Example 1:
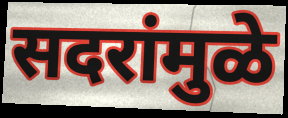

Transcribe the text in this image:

सदरांमुळे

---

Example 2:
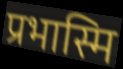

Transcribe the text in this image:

प्रभास्मि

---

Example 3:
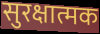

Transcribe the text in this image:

सुरक्षात्मक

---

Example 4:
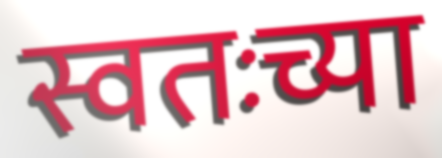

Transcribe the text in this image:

स्वतःच्या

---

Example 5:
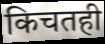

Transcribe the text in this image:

किचतही